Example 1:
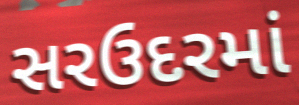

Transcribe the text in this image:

સરઉદરમાં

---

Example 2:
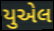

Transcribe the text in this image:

યુએલ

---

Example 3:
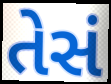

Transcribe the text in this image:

તેસં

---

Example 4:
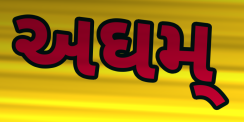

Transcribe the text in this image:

અઘમ્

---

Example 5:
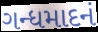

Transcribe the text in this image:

ગન્ધમાદનં